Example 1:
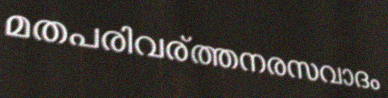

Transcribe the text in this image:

മതപരിവര്ത്തനരസവാദം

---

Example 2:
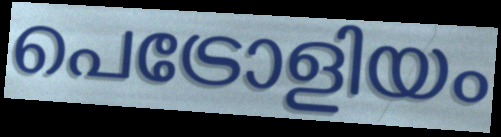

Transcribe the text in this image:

പെട്രോളിയം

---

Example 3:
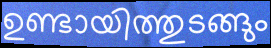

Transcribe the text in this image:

ഉണ്ടായിത്തുടങ്ങും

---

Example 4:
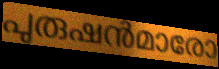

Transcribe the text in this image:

പുരുഷൻമാരോ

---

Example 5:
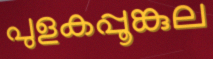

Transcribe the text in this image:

പുളകപ്പൂങ്കുല